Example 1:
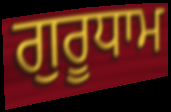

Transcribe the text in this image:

ਗੁਰੂਧਾਮ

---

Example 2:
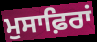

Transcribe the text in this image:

ਮੁਸਾਫ਼ਿਰਾਂ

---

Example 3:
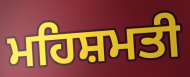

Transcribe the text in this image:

ਮਹਿਸ਼ਮਤੀ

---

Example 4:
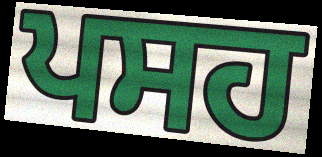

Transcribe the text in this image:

ਪਸਹ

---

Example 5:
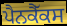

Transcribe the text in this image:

ਪੈਨਕੈੱਕਸ